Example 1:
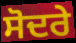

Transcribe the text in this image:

ਸੋਦਰੇ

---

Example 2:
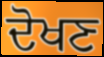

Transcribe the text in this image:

ਦੋਖਣ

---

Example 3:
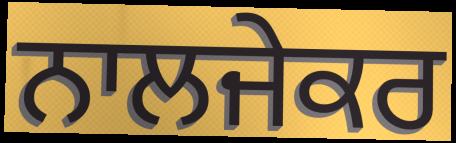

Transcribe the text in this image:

ਨਾਲਜੇਕਰ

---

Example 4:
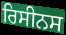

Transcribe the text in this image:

ਰਿਸੀਨਸ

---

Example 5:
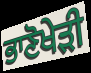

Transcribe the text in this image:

ਭਾਣੋਖੇੜੀ